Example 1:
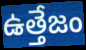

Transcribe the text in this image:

ఉత్తేజం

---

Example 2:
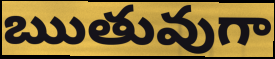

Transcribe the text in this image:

ఋతువుగా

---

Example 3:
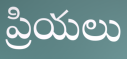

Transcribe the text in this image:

ప్రియలు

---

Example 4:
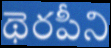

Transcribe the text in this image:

థెరపీని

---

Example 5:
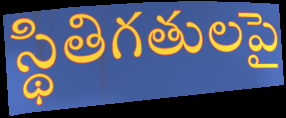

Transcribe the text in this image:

స్థితిగతులపై